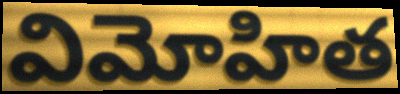
విమోహిత